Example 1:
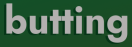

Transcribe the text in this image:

butting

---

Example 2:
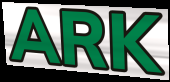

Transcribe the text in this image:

ARK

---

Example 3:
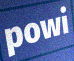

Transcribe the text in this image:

powi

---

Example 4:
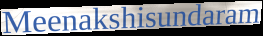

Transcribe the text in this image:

Meenakshisundaram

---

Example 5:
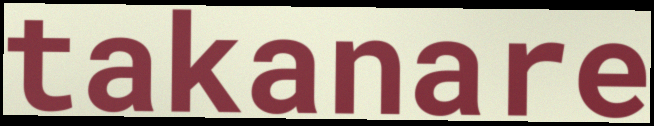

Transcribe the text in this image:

takanare